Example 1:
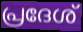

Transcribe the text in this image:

പ്രദേശ്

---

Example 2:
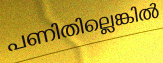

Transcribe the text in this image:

പണിതില്ലെങ്കിൽ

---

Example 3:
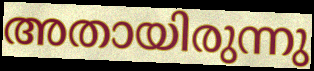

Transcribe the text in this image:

അതായിരുന്നു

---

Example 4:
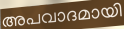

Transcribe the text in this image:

അപവാദമായി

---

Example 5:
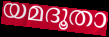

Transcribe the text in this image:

യമദൂതാ